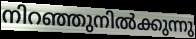
നിറഞ്ഞുനിൽക്കുന്നു